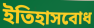
ইতিহাসবোধ